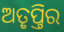
ଅତୃପ୍ତିର